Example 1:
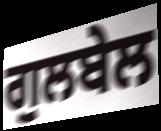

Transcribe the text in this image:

ਗੁਲਬੇਲ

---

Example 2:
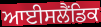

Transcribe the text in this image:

ਆਈਸਲੈਂਡਿਕ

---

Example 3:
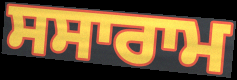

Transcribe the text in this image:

ਸਸਾਰਾਮ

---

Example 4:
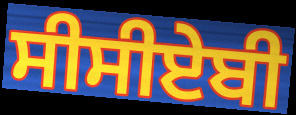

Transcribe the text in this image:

ਸੀਸੀਏਬੀ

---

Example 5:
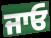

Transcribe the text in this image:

ਜਾਓ